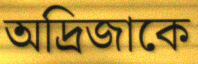
অদ্রিজাকে